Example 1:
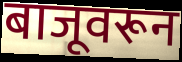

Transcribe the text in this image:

बाजूवरून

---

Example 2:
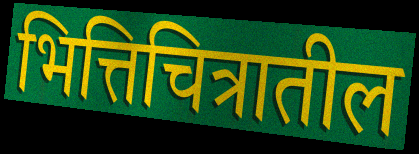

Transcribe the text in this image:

भित्तिचित्रातील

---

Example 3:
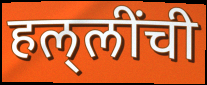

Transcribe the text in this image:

हल्लींची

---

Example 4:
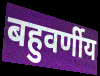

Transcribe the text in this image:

बहुवर्णीय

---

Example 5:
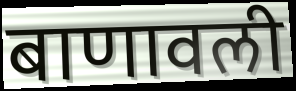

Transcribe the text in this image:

बाणावली